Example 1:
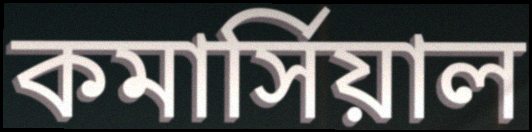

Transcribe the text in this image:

কমার্সিয়াল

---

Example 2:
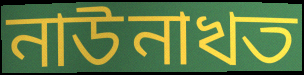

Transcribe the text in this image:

নাউনাখত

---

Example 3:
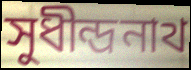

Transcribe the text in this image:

সুধীন্দ্রনাথ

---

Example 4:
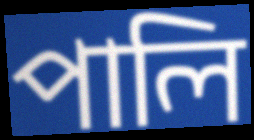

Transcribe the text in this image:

পালি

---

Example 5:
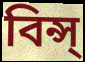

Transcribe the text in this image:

বিন্স্